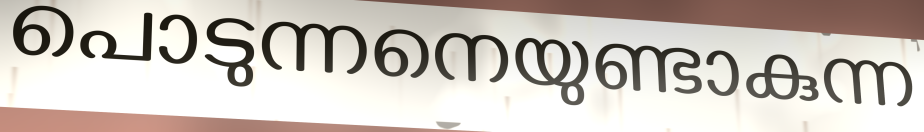
പൊടുന്നനെയുണ്ടാകുന്ന